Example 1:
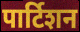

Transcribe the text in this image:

पार्टिशन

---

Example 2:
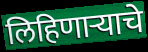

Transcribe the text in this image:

लिहिणाऱ्याचे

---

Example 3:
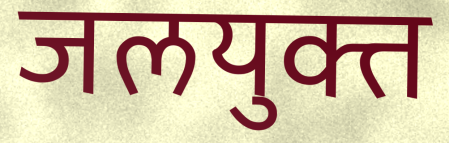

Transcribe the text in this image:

जलयुक्त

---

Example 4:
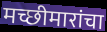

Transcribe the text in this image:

मच्छीमारांचा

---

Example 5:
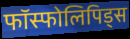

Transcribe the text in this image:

फॉस्फोलिपिड्स